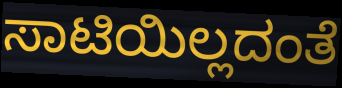
ಸಾಟಿಯಿಲ್ಲದಂತೆ